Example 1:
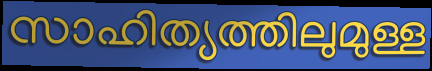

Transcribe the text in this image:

സാഹിത്യത്തിലുമുള്ള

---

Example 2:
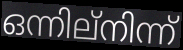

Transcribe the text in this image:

ഒന്നില്നിന്ന്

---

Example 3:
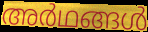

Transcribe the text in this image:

അർഥങ്ങൾ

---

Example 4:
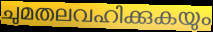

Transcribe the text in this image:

ചുമതലവഹിക്കുകയും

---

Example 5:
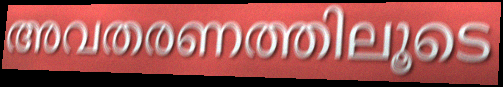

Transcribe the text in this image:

അവതരണത്തിലൂടെ